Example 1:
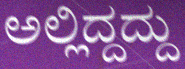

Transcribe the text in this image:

ಅಲ್ಲಿದ್ದದ್ದು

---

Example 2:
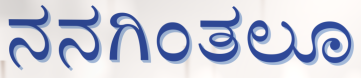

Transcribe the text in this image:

ನನಗಿಂತಲೂ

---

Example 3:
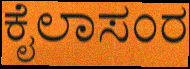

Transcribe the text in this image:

ಕೈಲಾಸಂರ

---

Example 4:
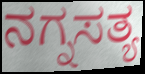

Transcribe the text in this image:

ನಗ್ನಸತ್ಯ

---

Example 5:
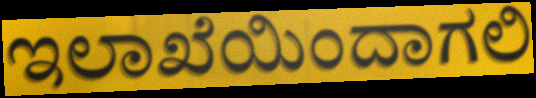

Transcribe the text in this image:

ಇಲಾಖೆಯಿಂದಾಗಲಿ